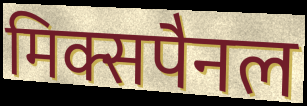
मिक्सपैनल